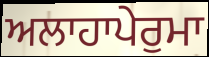
ਅਲਾਹਾਪੇਰੁਮਾ